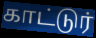
காட்டுர்